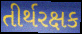
તીર્થરક્ષક